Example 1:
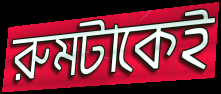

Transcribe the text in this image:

রুমটাকেই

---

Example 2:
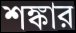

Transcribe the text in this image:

শঙ্কার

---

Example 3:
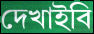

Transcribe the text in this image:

দেখাইবি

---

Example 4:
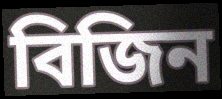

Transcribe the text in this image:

বিজিন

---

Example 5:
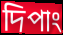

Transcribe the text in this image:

দিপাং